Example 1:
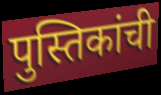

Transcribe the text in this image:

पुस्तिकांची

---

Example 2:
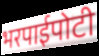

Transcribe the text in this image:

भरपाईपोटी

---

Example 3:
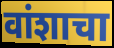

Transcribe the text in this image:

वांशाचा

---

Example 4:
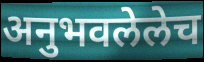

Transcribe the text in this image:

अनुभवलेलेच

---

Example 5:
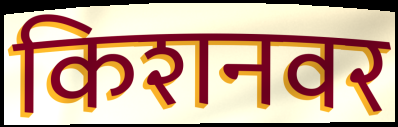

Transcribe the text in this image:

किशनवर